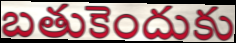
బతుకెందుకు